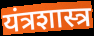
यंत्रशास्त्र